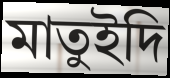
মাতুইদি